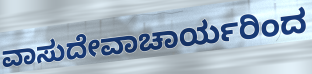
ವಾಸುದೇವಾಚಾರ್ಯರಿಂದ